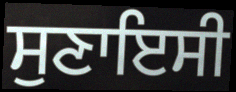
ਸੁਣਾਇਸੀ